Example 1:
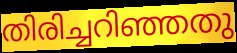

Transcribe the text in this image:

തിരിച്ചറിഞ്ഞതു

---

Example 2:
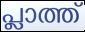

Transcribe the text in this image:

പ്ലാത്ത്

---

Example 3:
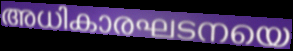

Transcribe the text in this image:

അധികാരഘടനയെ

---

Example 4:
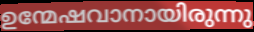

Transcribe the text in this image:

ഉന്മേഷവാനായിരുന്നു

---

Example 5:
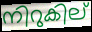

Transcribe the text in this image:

നിറുകില്